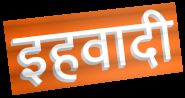
इहवादी